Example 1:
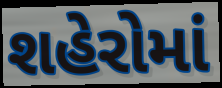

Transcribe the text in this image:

શહેરોમાં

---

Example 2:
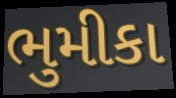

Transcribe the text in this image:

ભુમીકા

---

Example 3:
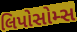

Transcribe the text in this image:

લિપોસોમ્સ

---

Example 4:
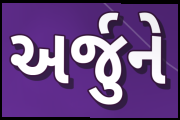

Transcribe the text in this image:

અર્જુને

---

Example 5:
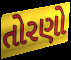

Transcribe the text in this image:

તોરણો